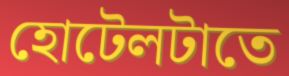
হোটেলটাতে